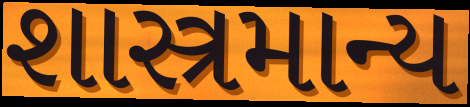
શાસ્ત્રમાન્ય